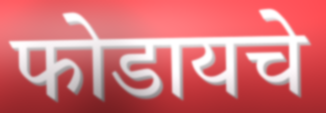
फोडायचे